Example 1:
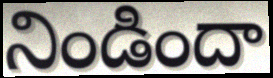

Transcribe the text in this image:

నిండిందా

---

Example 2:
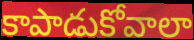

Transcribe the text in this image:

కాపాడుకోవాలా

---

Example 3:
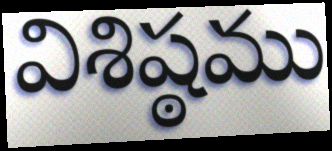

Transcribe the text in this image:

విశిష్ఠము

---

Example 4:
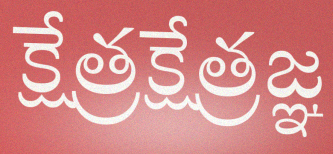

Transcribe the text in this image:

క్షేత్రక్షేత్రజ్ఞ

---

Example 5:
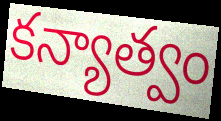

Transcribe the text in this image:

కన్యాత్వం